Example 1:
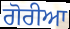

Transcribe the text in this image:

ਗੋਰੀਆ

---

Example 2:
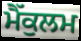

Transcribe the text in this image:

ਮੈੱਕੁਲਮ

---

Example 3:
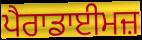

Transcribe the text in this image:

ਪੈਰਾਡਾਈਮਜ਼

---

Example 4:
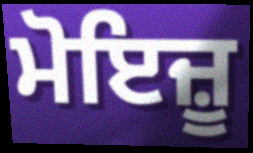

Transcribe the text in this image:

ਮੋਇਜ਼ੂ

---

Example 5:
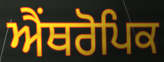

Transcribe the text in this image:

ਐਂਥਰੋਪਿਕ